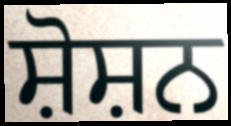
ਸ਼ੋਸ਼ਨ